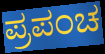
ಪ್ರಪಂಚ